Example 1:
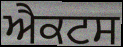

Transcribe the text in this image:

ਐਕਟਸ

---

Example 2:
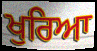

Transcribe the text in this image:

ਖੁਰਿਆ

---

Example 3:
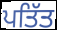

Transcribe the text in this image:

ਪਤਿੱਤ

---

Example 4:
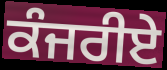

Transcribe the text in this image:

ਕੰਜਰੀਏ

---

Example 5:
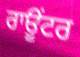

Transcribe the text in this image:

ਰਾਊਂਟਰ